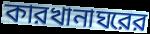
কারখানাঘরের